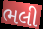
ભલી